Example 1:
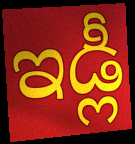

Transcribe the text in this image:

ఇడ్లీ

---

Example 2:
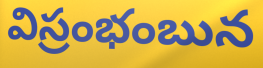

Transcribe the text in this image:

విస్రంభంబున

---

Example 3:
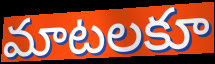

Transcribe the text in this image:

మాటలకూ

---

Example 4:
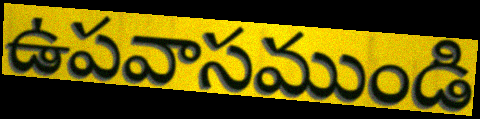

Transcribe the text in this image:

ఉపవాసముండి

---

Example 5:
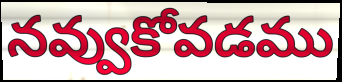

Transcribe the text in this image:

నవ్వుకోవడము